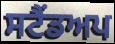
ਸਟੈਂਡਅਪ